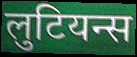
लुटियन्स